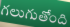
గలుగుతోంది